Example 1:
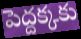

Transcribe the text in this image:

పెద్దక్కకు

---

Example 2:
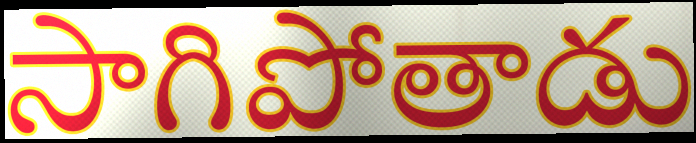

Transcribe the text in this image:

సాగిపోతాడు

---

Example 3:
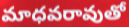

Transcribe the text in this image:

మాధవరావుతో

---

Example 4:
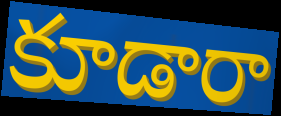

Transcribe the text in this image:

కూడారా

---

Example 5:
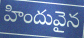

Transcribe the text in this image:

హిందువైన